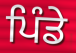
ਪਿੰਡੇ